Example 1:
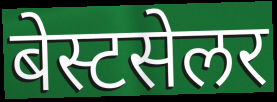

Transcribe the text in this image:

बेस्टसेलर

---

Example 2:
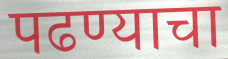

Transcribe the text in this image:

पढण्याचा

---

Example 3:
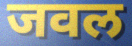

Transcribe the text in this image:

जवल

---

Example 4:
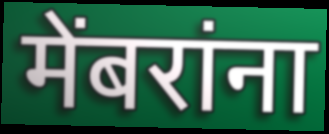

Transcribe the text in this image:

मेंबरांना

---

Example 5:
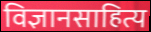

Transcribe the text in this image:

विज्ञानसाहित्य